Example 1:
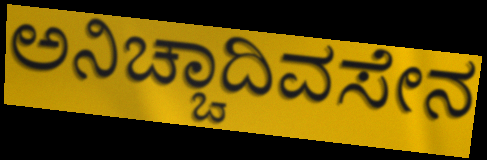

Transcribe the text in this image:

ಅನಿಚ್ಚಾದಿವಸೇನ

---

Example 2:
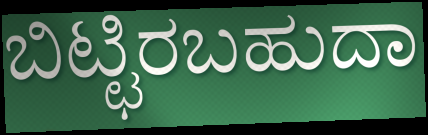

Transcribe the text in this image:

ಬಿಟ್ಟಿರಬಹುದಾ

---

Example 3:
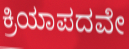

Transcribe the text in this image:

ಕ್ರಿಯಾಪದವೇ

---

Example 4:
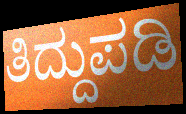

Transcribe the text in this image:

ತಿದ್ದುಪಡಿ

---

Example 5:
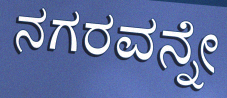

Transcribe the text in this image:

ನಗರವನ್ನೇ